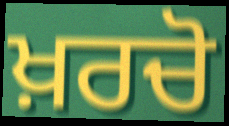
ਖ਼ਰਚੋ